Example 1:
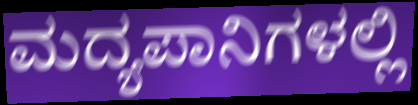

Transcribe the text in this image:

ಮದ್ಯಪಾನಿಗಳಲ್ಲಿ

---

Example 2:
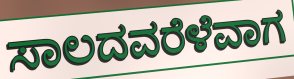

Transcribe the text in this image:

ಸಾಲದವರೆಳೆವಾಗ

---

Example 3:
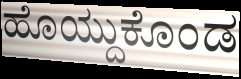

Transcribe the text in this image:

ಹೊಯ್ದುಕೊಂಡ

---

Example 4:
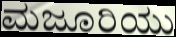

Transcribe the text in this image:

ಮಜೂರಿಯು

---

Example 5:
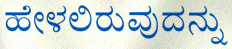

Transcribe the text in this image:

ಹೇಳಲಿರುವುದನ್ನು